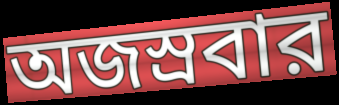
অজস্রবার